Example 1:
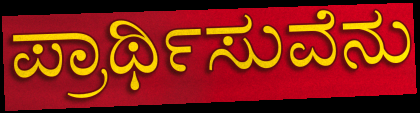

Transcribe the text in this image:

ಪ್ರಾರ್ಥಿಸುವೆನು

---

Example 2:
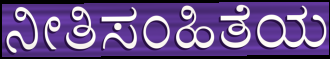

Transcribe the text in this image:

ನೀತಿಸಂಹಿತೆಯ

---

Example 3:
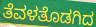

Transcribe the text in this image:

ತೆವಳತೊಡಗಿದ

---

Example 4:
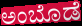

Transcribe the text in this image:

ಅಂಬೊಡೆ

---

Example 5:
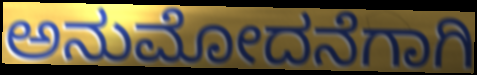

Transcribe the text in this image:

ಅನುಮೋದನೆಗಾಗಿ